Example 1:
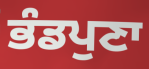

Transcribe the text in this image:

ਭੰਡਪੁਣਾ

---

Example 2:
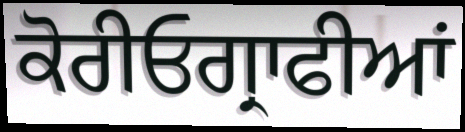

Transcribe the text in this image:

ਕੋਰੀਓਗ੍ਰਾਫੀਆਂ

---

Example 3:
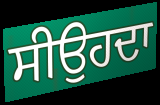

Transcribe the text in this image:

ਸੀਉਹਦਾ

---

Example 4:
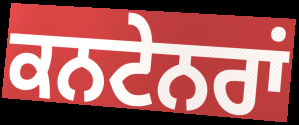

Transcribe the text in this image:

ਕਨਟੇਨਰਾਂ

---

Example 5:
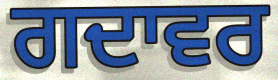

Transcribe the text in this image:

ਗਦਾਵਰ